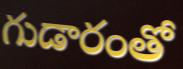
గుడారంతో